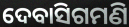
ଦେବାସିଗମଣି